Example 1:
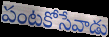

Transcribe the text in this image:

పంటకోసేవాడు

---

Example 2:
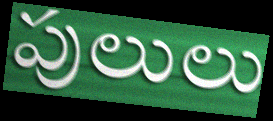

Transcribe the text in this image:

పులులు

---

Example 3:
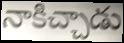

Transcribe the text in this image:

నాకిచ్చాడు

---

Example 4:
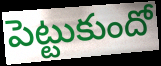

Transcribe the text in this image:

పెట్టుకుందో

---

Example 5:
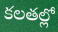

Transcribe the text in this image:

కలతల్లో